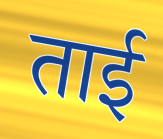
ताई